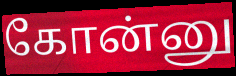
கோன்னு